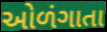
ઓળંગાતા